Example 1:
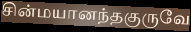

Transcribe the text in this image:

சின்மயானந்தகுருவே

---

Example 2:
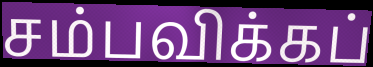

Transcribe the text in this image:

சம்பவிக்கப்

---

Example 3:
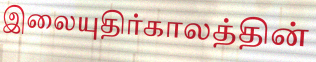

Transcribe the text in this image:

இலையுதிர்காலத்தின்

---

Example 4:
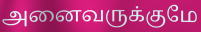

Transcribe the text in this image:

அனைவருக்குமே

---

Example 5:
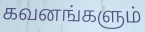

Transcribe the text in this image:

கவனங்களும்